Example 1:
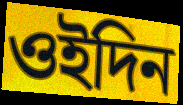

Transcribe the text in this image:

ওইদিন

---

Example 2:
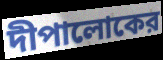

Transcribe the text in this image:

দীপালোকের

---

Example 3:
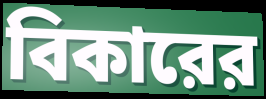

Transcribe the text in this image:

বিকারের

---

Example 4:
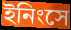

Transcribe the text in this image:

ইনিংসে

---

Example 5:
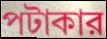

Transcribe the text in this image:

পটাকার